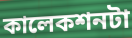
কালেকশনটা